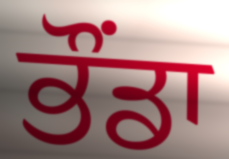
ਭੌਂਡਾ